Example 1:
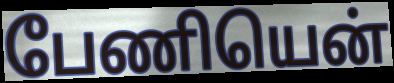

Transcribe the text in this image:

பேணியென்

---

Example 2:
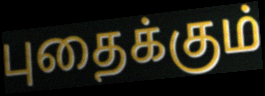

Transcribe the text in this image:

புதைக்கும்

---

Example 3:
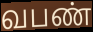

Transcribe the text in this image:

வபண்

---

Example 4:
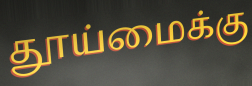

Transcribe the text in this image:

தூய்மைக்கு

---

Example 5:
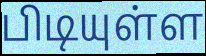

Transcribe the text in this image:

பிடியுள்ள